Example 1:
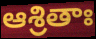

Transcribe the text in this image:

ఆశ్రితాః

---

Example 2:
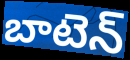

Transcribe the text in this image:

బాటెన్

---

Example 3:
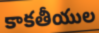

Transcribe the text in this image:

కాకతీయుల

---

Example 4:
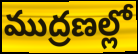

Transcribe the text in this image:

ముద్రణల్లో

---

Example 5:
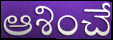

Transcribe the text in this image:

ఆశించే